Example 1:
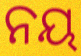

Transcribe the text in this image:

ନୟ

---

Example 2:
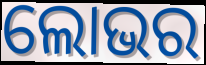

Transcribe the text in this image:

ଲୋଭର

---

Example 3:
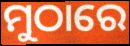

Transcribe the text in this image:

ମୁଠାରେ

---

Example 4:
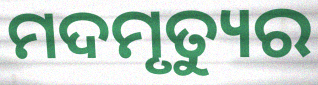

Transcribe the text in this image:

ମଦମୃତ୍ୟୁର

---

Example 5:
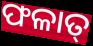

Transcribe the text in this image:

ଫଳାତ୍